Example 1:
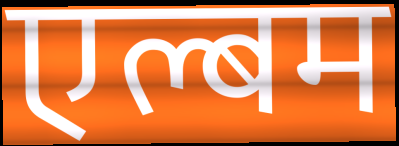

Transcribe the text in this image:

एल्बम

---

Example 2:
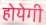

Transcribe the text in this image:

होयेगी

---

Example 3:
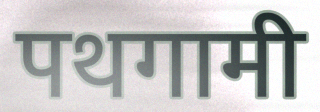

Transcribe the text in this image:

पथगामी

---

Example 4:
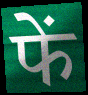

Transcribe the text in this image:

फें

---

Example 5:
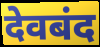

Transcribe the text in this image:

देवबंद